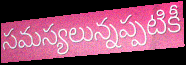
సమస్యలున్నప్పటికీ